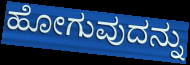
ಹೋಗುವುದನ್ನು